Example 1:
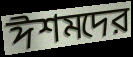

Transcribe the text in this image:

ঈশমদের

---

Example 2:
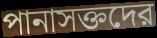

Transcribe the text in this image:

পানাসক্তদের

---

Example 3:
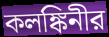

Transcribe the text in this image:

কলঙ্কিনীর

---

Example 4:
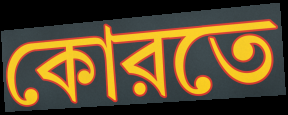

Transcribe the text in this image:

কোরতে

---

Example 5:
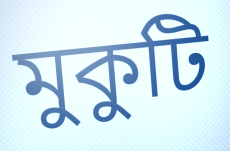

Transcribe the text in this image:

মুকুটি